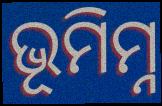
ଭୂମିମ୍ନ